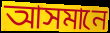
আসমানে